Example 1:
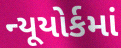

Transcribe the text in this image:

ન્યૂયોર્કમાં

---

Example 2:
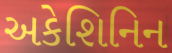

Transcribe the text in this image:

અકેશિનિન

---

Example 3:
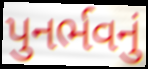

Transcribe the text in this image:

પુનર્ભવનું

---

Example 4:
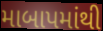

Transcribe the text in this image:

માબાપમાંથી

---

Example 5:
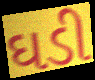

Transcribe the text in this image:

ઘડી